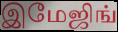
இமேஜிங்